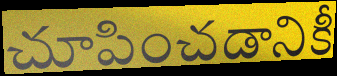
చూపించడానికీ